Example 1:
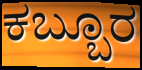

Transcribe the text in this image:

ಕಬ್ಬೂರ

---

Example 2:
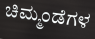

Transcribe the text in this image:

ಚಿಮ್ಮಂಡೆಗಳ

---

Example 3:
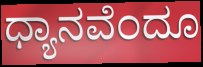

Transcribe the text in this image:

ಧ್ಯಾನವೆಂದೂ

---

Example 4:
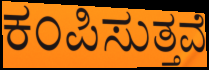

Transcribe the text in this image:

ಕಂಪಿಸುತ್ತವೆ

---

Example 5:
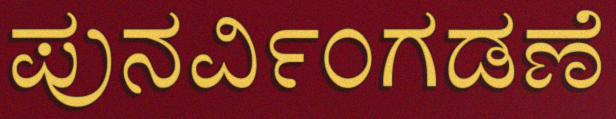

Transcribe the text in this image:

ಪುನರ್ವಿಂಗಡಣೆ